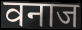
वनाज